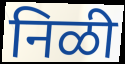
निळी